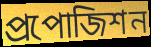
প্রপোজিশন